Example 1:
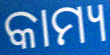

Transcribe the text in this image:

କାମ୍ୟ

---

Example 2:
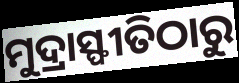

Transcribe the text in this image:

ମୁଦ୍ରାସ୍ଫୀତିଠାରୁ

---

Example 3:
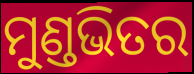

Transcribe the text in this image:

ମୁଣ୍ଡଭିତର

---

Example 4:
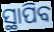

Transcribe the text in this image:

ସ୍ଥାପିବ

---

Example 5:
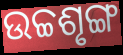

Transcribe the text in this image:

ଉଚ୍ଚଶୃଙ୍ଗ